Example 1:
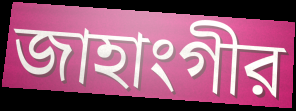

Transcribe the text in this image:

জাহাংগীর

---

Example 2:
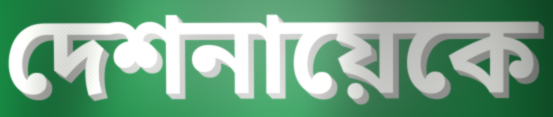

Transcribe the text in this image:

দেশনায়েকে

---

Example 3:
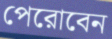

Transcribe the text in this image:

পেরোবেন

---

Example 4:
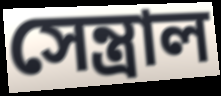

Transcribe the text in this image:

সেন্ত্রাল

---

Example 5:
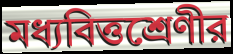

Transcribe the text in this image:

মধ্যবিত্তশ্রেণীর